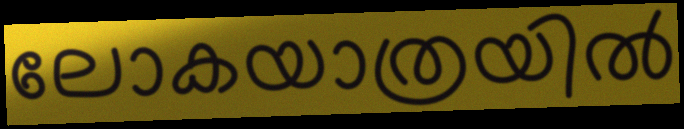
ലോകയാത്രയിൽ